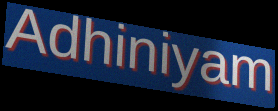
Adhiniyam